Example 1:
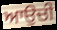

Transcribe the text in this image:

ਆਉਚੀ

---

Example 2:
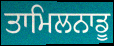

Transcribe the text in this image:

ਤਾਮਿਲਨਾਡੂ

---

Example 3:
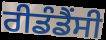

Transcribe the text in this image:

ਰੀਡੰਡੈਂਸੀ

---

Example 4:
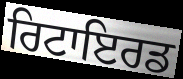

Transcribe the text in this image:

ਰਿਟਾਇਰਡ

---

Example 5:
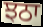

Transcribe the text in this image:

ਝਠਾ